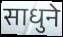
साधुने